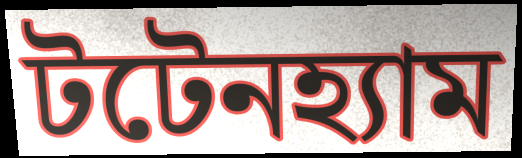
টটেনহ্যাম